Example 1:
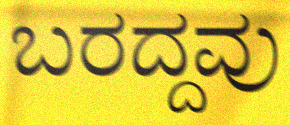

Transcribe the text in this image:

ಬರದ್ದವು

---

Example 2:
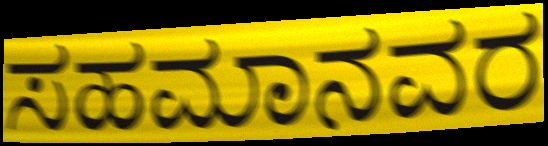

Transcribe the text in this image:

ಸಹಮಾನವರ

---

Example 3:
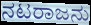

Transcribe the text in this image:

ನಟರಾಜನು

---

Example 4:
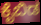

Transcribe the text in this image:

ಕೈಬಿಡ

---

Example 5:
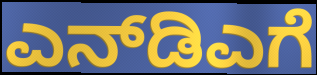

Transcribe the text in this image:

ಎನ್‌ಡಿಎಗೆ